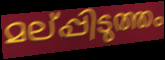
മല്പ്പിടുത്തം